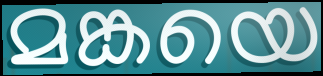
മങ്കയെ